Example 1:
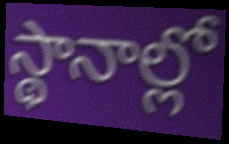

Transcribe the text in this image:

స్థానాల్లో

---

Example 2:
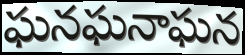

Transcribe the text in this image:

ఘనఘనాఘన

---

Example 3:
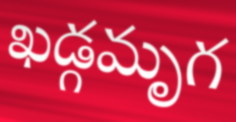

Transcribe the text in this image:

ఖడ్గమృగ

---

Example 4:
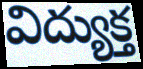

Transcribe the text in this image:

విద్యుక్త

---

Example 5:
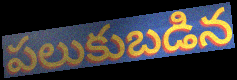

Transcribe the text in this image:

పలుకుబడిన